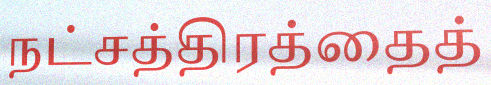
நட்சத்திரத்தைத்